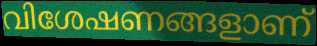
വിശേഷണങ്ങളാണ്